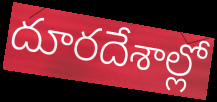
దూరదేశాల్లో